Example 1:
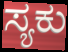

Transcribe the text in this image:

ಸ್ಯಕು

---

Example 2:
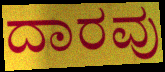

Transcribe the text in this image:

ದಾರವು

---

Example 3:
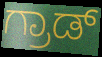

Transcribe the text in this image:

ಗ್ರಾಡ್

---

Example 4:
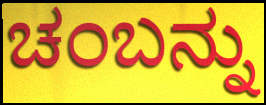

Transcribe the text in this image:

ಚಂಬನ್ನು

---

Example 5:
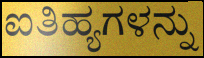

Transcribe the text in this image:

ಐತಿಹ್ಯಗಳನ್ನು